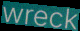
wreck